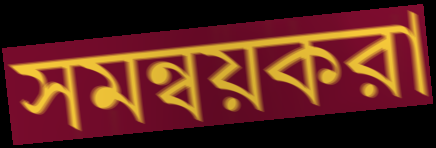
সমন্বয়করা